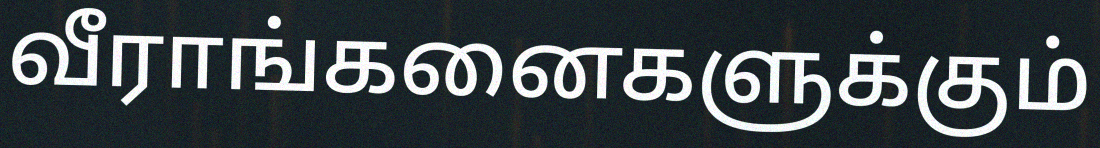
வீராங்கனைகளுக்கும்